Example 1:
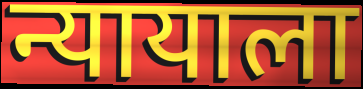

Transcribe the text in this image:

न्यायाला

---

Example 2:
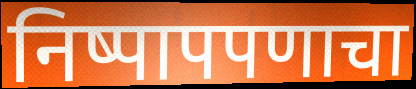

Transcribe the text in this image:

निष्पापपणाचा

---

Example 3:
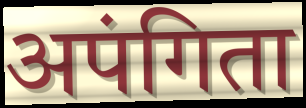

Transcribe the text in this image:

अपंगिता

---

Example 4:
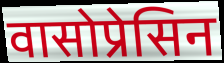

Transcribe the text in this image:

वासोप्रेसिन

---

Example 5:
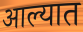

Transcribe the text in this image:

आल्यात